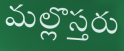
మల్లొస్తరు